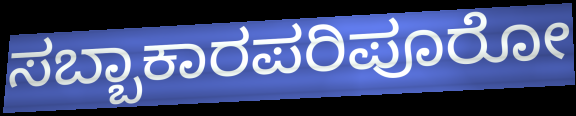
ಸಬ್ಬಾಕಾರಪರಿಪೂರೋ